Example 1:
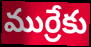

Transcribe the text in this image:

ముర్రేకు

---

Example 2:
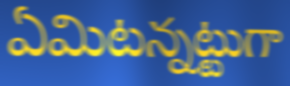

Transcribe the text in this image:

ఏమిటన్నట్టుగా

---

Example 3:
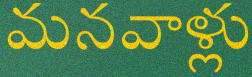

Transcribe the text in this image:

మనవాళ్లు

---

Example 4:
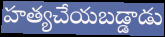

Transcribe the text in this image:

హత్యచేయబడ్డాడు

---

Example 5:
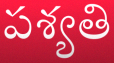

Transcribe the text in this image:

పశ్యతి